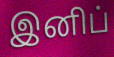
இனிப்